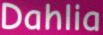
Dahlia